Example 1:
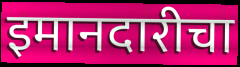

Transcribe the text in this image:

इमानदारीचा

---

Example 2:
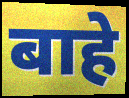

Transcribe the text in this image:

बाहे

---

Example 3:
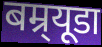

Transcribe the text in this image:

बम्र्यूडा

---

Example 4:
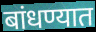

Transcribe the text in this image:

बांधण्यात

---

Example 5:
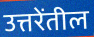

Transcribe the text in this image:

उत्तरेंतील